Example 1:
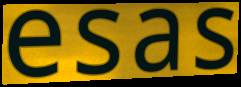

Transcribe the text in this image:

esas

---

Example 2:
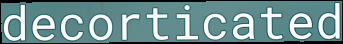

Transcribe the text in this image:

decorticated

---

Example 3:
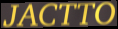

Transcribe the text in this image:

JACTTO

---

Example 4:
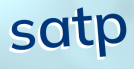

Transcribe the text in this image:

satp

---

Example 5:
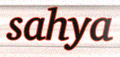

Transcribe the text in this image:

sahya